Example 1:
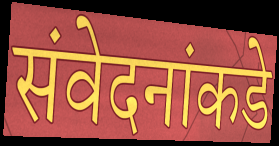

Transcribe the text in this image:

संवेदनांकडे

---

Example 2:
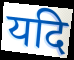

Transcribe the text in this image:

यदि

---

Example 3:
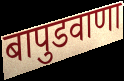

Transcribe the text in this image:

बापुडवाणा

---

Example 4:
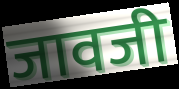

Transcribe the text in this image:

जावजी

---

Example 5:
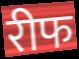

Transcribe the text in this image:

रीफ